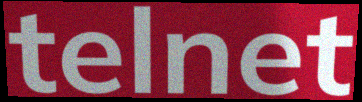
telnet